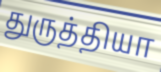
துருத்தியா